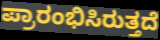
ಪ್ರಾರಂಭಿಸಿರುತ್ತದೆ